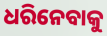
ଧରିନେବାକୁ